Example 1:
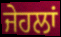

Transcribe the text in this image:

ਜੇਹਲਾਂ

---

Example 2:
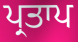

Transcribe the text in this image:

ਪ੍ਰਤਾਪ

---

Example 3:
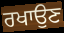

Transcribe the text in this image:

ਰਖਾਉਣ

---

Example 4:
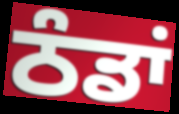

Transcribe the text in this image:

ਠੰਡਾਂ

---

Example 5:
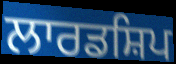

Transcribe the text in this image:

ਲਾਰਡਸ਼ਿਪ